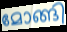
മോങ്ങി